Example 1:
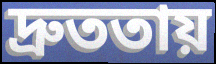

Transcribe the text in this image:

দ্রুততায়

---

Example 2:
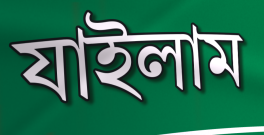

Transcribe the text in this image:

যাইলাম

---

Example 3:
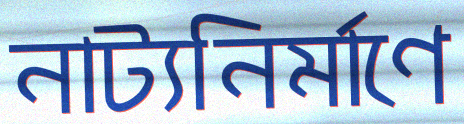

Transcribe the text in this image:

নাট্যনির্মাণে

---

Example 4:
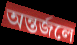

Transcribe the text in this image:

অন্তর্জলে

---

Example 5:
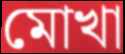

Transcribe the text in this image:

মোখা